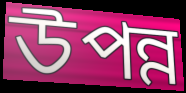
উপন্ন